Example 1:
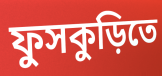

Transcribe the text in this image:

ফুসকুড়িতে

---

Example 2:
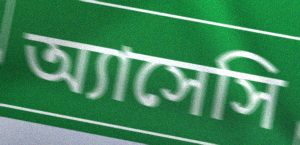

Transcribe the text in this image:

অ্যাসেসি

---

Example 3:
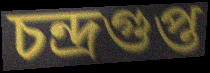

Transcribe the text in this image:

চন্দ্রগুপ্ত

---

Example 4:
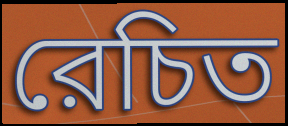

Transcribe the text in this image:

রেচিত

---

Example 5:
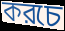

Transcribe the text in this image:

করচে